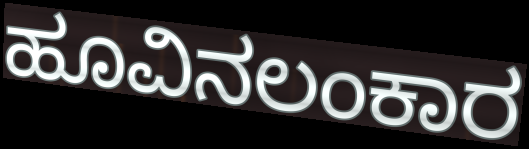
ಹೂವಿನಲಂಕಾರ